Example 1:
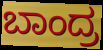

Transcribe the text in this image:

ಬಾಂದ್ರ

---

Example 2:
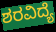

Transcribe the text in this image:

ಶರವಿದ್ಯೆ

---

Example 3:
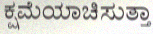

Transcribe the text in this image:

ಕ್ಷಮೆಯಾಚಿಸುತ್ತಾ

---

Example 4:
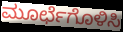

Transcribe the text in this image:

ಮೂರ್ಛೆಗೊಳಿಸಿ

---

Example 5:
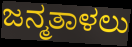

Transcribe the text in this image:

ಜನ್ಮತಾಳಲು